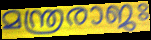
മന്ത്രരാജഃ